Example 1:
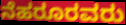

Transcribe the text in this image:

ನೆಹರೂರವರು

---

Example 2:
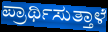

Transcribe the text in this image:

ಪ್ರಾರ್ಥಿಸುತ್ತಾಳೆ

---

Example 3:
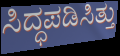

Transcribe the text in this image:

ಸಿದ್ಧಪಡಿಸಿತ್ತು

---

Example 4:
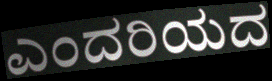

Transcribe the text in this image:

ಎಂದರಿಯದ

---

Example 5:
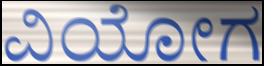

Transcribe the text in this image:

ವಿಯೋಗ